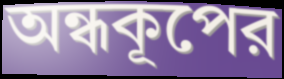
অন্ধকূপের